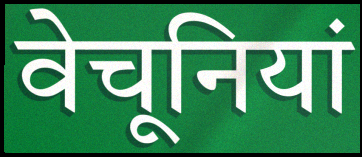
वेचूनियां